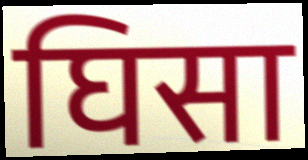
घिसा